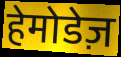
हेमोडेज़